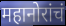
महानोरांचं